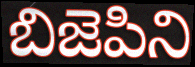
బిజెపిని